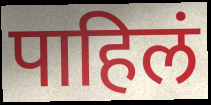
पाहिलं